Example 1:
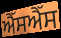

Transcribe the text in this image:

ਐੱਸਐੱਸ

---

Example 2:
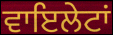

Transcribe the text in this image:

ਵਾਇਲੇਟਾਂ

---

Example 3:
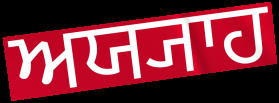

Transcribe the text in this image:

ਅਯ੍ਯਾਹ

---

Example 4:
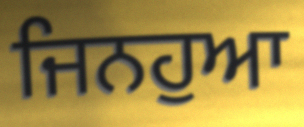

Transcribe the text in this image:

ਜਿਨਹੁਆ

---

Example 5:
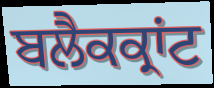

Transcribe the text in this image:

ਬਲੈਕਕ੍ਰਾਂਟ